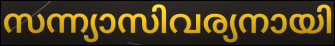
സന്ന്യാസിവര്യനായി